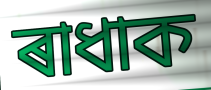
ৰাধাক